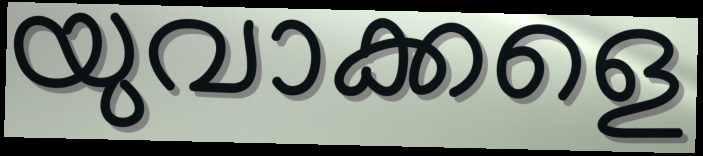
യുവാക്കളെ